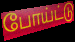
போய்ட்டு